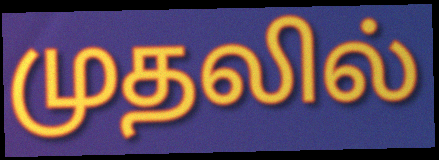
முதலில்